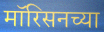
मॉरिसनच्या